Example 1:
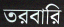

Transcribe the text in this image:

তরবারি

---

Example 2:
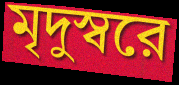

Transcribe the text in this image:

মৃদুস্বরে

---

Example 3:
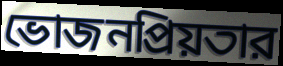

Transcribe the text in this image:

ভোজনপ্রিয়তার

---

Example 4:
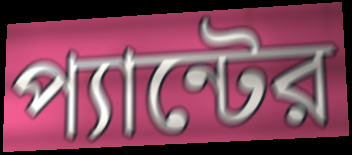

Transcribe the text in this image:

প্যান্টের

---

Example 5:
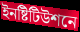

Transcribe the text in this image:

ইনষ্টিটিউশনে